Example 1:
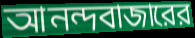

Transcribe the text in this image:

আনন্দবাজারের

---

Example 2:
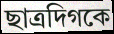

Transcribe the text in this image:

ছাত্রদিগকে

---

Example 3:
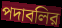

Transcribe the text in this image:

পদাবলির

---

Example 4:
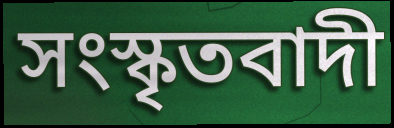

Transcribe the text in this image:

সংস্কৃতবাদী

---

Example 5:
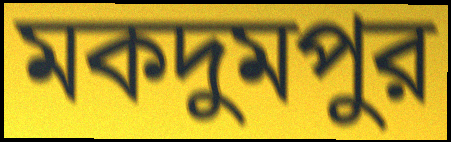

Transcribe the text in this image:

মকদুমপুর